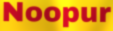
Noopur